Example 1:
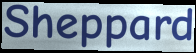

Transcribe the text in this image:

Sheppard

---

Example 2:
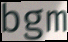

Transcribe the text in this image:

bgm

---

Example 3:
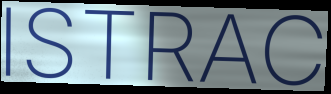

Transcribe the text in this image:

ISTRAC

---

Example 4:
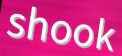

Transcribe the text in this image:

shook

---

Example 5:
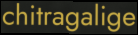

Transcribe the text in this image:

chitragalige